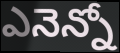
ఎనెన్నో